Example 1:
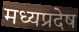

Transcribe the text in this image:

मध्यप्रदेष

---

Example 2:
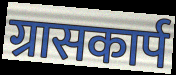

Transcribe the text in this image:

ग्रासकार्प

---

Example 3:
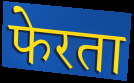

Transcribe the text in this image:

फेरता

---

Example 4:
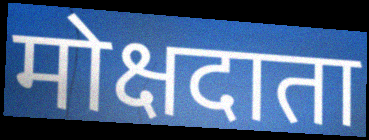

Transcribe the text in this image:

मोक्षदाता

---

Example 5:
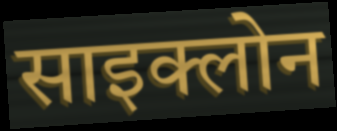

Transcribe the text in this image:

साइक्लोन